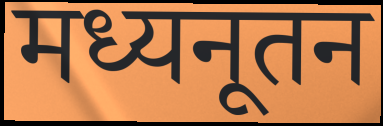
मध्यनूतन